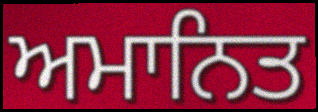
ਅਮਾਨਿਤ